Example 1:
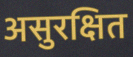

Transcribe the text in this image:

असुरक्षित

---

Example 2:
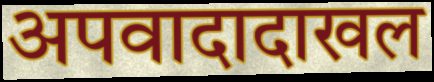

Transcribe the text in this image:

अपवादादाखल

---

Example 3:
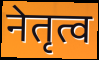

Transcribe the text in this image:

नेतृत्‍व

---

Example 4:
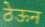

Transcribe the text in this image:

ठेऊन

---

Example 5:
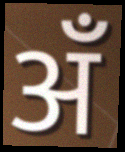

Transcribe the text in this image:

अँ